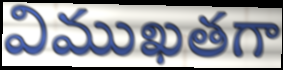
విముఖతగా